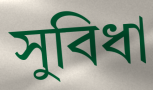
সুবিধা